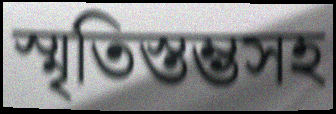
স্মৃতিস্তম্ভসহ